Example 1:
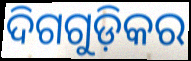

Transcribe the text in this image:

ଦିଗଗୁଡ଼ିକର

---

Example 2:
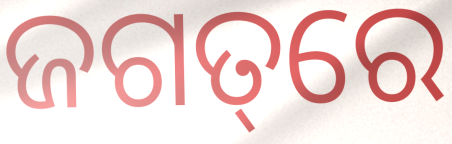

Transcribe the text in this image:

ଜଗତ୍‌ରେ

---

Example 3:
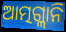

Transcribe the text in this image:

ଆତ୍ମଗ୍ଲାନି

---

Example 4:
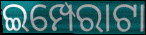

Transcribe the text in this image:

ଇମ୍ପେରାଟା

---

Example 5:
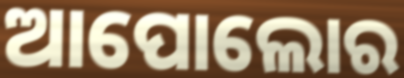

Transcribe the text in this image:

ଆପୋଲୋର